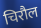
चिरौल